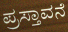
ಪ್ರಸ್ತಾವನೆ